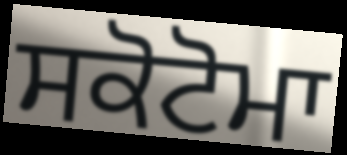
ਸਕੋਟੋਮਾ